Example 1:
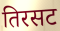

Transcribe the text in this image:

तिरसट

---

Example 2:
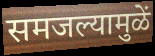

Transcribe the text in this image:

समजल्यामुळें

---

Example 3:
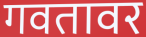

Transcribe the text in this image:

गवतावर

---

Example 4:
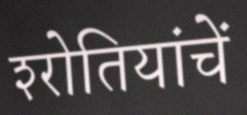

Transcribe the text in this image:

श्रोतियांचें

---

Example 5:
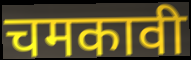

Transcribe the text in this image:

चमकावी